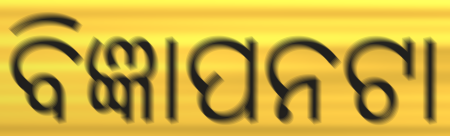
ବିଜ୍ଞାପନଟା